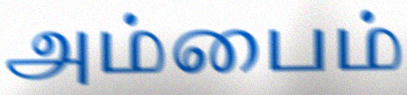
அம்பைம்